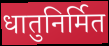
धातुनिर्मित